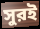
সুরই